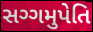
સગ્ગમુપેતિ